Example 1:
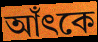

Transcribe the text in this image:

আঁৎকে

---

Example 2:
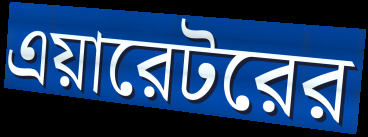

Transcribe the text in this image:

এয়ারেটরের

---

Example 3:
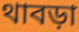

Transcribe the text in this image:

থাবড়া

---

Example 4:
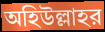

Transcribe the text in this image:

অহিউল্লাহর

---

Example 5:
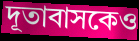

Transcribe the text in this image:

দূতাবাসকেও